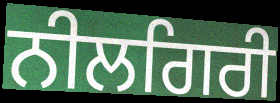
ਨੀਲਗਿਰੀ